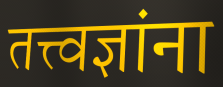
तत्त्वज्ञांना